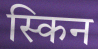
स्‍किन